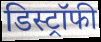
डिस्ट्रॉफी